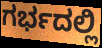
ಗರ್ಭದಲ್ಲಿ